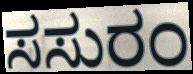
ಸಸುರಂ